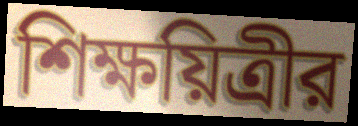
শিক্ষয়িত্রীর